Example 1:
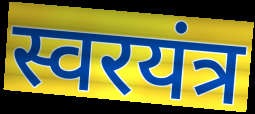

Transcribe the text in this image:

स्वरयंत्र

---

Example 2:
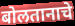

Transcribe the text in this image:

बोलतानाचे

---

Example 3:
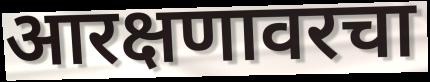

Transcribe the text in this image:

आरक्षणावरचा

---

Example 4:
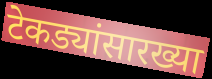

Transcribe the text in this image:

टेकड्यांसारख्या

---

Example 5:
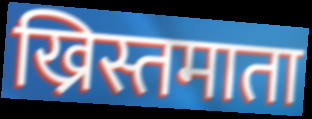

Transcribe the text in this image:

ख्रिस्तमाता